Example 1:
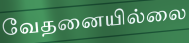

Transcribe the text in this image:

வேதனையில்லை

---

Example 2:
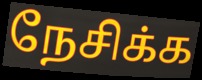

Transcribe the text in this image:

நேசிக்க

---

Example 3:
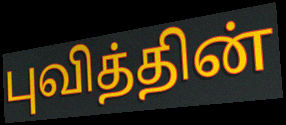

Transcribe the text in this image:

புவித்தின்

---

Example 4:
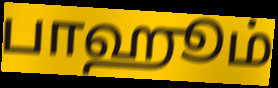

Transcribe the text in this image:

பாஹூம்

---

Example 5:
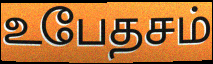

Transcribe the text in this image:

உபேதசம்